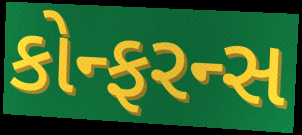
કોન્ફરન્સ